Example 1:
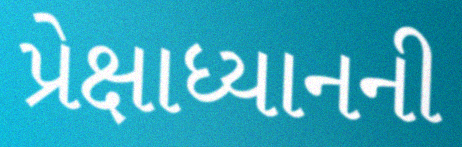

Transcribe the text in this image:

પ્રેક્ષાધ્યાનની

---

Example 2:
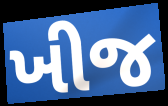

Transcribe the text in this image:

ખીજ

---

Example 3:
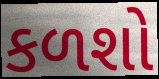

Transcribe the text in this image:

કળશો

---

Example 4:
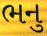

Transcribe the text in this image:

ભનુ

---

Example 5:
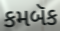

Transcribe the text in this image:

કમબૅક